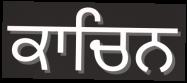
ਕਾਚਿਨ